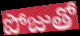
పోజుతో